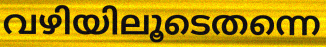
വഴിയിലൂടെതന്നെ